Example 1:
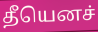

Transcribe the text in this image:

தீயெனச்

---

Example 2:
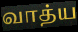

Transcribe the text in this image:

வாத்ய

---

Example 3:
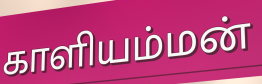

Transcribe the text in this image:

காளியம்மன்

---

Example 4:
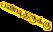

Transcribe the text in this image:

பண்டிதருக்கு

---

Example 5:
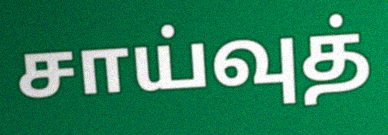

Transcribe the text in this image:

சாய்வுத்